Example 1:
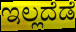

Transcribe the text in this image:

ಇಲ್ಲದೆಡೆ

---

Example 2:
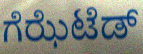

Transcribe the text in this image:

ಗೆಝೆಟೆಡ್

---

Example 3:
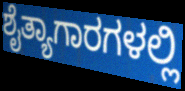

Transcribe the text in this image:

ಶೈತ್ಯಾಗಾರಗಳಲ್ಲಿ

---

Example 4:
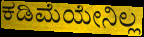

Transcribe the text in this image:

ಕಡಿಮೆಯೇನಿಲ್ಲ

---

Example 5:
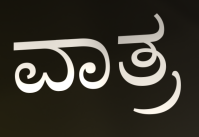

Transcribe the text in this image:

ವಾತ್ರ